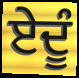
ਏਦੂੰ